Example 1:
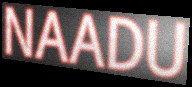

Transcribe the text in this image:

NAADU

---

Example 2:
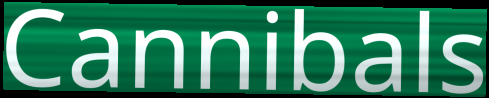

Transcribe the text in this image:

Cannibals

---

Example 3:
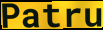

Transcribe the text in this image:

Patru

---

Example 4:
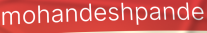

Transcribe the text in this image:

mohandeshpande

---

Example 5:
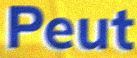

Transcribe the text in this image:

Peut